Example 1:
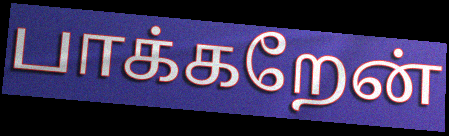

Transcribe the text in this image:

பாக்கறேன்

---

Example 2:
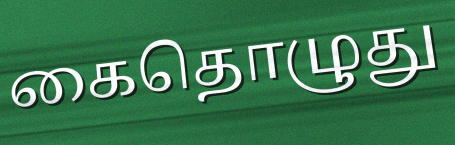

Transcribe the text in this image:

கைதொழுது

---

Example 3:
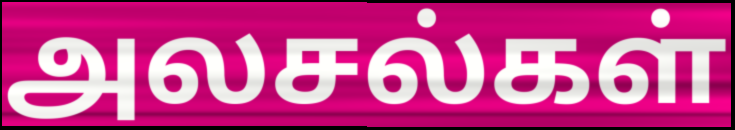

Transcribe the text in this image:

அலசல்கள்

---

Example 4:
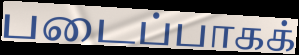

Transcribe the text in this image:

படைப்பாகக்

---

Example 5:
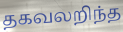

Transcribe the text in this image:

தகவலறிந்த